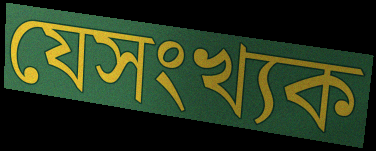
যেসংখ্যক